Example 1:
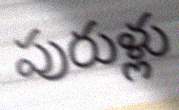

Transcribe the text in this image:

పురుళ్లు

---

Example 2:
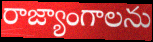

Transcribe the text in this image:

రాజ్యాంగాలను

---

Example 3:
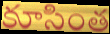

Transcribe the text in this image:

కూసింత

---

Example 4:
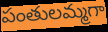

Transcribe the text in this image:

పంతులమ్మగా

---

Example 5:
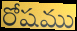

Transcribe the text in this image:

రోషము